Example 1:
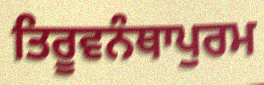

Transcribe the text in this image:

ਤਿਰੂਵਨੰਥਾਪੁਰਮ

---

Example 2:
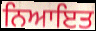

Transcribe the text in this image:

ਨਿਆਇਤ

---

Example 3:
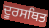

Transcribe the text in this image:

ਦੂਰਸਥਿਤ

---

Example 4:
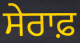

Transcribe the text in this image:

ਸੇਰਾਫ਼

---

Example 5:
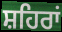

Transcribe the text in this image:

ਸ਼ਹਿਰਾਂ